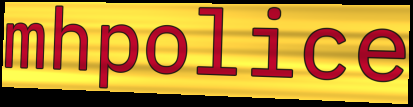
mhpolice